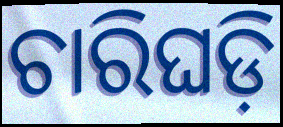
ଚାରିଘଡ଼ି